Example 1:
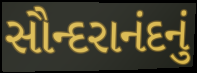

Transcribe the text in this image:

સૌન્દરાનંદનું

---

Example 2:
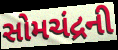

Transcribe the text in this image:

સોમચંદ્રની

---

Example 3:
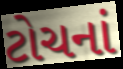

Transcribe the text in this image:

ટોચનાં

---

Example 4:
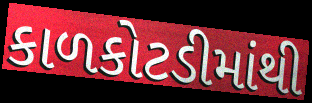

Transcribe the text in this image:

કાળકોટડીમાંથી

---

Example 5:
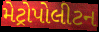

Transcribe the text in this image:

મેટ્રોપોલીટન